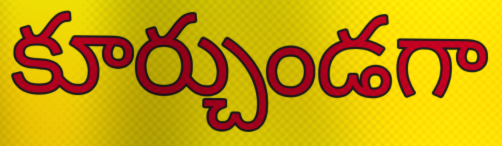
కూర్చుండగా